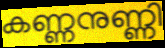
കണ്ണനുണ്ണി